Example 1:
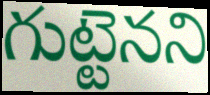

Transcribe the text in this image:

గుట్టెనని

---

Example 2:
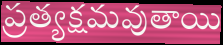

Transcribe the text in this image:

ప్రత్యక్షమవుతాయి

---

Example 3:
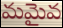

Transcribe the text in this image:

మమైవ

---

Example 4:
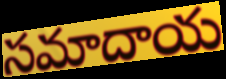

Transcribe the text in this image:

సమాదాయ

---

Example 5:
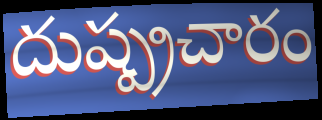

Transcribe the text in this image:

దుష్ప్రచారం